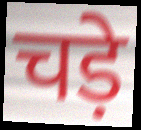
चड़े